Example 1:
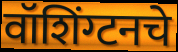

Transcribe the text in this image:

वॉशिंग्टनचे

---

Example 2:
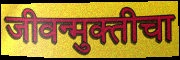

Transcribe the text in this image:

जीवन्मुक्तीचा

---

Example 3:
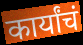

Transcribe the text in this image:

कार्यांचं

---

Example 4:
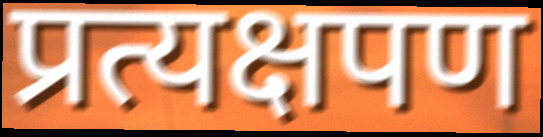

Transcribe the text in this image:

प्रत्यक्षपण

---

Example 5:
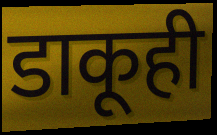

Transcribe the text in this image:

डाकूही